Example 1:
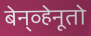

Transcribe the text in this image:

बेन्‌व्हेनूतो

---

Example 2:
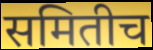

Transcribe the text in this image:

समितीच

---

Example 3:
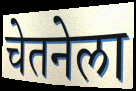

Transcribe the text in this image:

चेतनेला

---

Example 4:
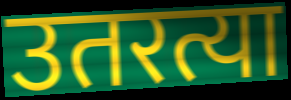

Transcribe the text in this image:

उतरत्या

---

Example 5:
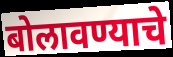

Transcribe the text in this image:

बोलावण्याचे